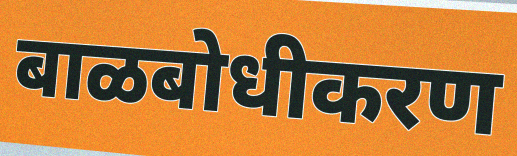
बाळबोधीकरण